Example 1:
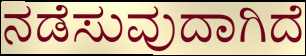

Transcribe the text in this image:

ನಡೆಸುವುದಾಗಿದೆ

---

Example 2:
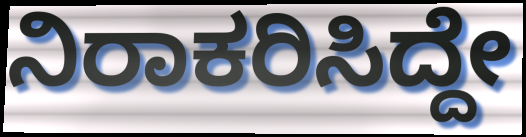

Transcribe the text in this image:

ನಿರಾಕರಿಸಿದ್ದೇ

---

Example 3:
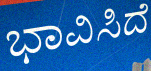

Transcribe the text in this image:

ಭಾವಿಸಿದೆ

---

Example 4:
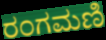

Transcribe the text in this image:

ರಂಗಮಣಿ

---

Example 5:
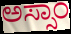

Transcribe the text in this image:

ಅಸ್ಸಾಂ